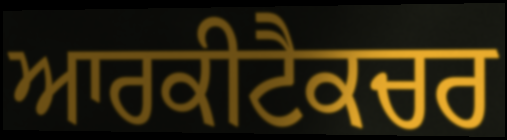
ਆਰਕੀਟੈਕਚਰ